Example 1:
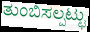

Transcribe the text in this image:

ತುಂಬಿಸಲ್ಪಟ್ಟು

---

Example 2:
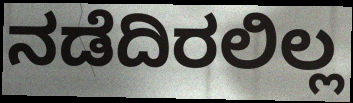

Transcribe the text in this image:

ನಡೆದಿರಲಿಲ್ಲ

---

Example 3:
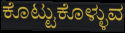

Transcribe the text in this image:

ಕೊಟ್ಟುಕೊಳ್ಳುವ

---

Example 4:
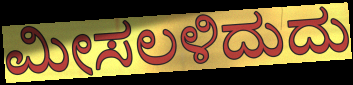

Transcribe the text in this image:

ಮೀಸಲಳಿದುದು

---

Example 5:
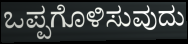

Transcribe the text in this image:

ಒಪ್ಪಗೊಳಿಸುವುದು